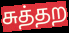
சுத்தற